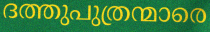
ദത്തുപുത്രന്മാരെ